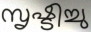
സൃഷ്ടിച്ചു